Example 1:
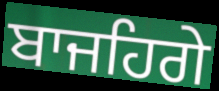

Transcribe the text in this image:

ਬਾਜਹਿਗੇ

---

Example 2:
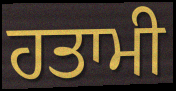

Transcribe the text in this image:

ਹਤਾਮੀ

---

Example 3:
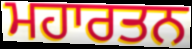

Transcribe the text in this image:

ਮਹਾਰਤਨ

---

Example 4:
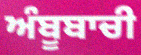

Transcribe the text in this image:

ਅੰਬੂਬਾਚੀ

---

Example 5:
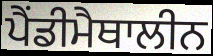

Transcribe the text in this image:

ਪੈਂਡੀਮੈਥਾਲੀਨ